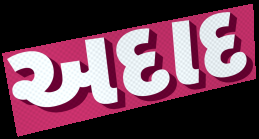
અદાદ